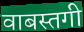
वाबस्तगी